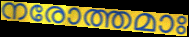
നരോത്തമാഃ